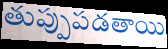
తుప్పుపడతాయి